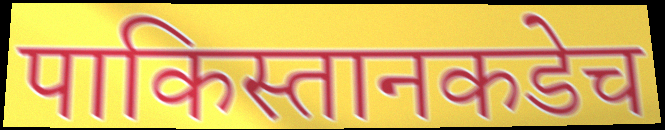
पाकिस्तानकडेच